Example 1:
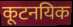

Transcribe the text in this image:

कूटनयिक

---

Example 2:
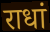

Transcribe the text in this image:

राधां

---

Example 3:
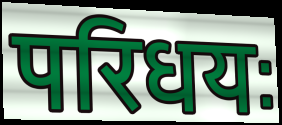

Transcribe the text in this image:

परिधयः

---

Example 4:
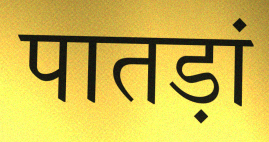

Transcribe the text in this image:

पातड़ां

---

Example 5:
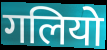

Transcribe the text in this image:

गलियो